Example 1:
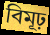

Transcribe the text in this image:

বিমূঢ়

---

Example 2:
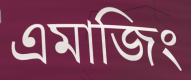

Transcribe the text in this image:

এমাজিং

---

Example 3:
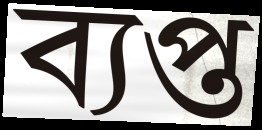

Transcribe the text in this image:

ব্যপ্ত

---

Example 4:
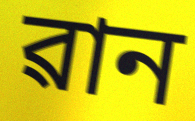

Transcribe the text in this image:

ৱান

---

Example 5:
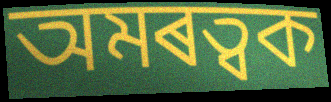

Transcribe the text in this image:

অমৰত্বক